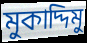
মুকাদ্দিমু